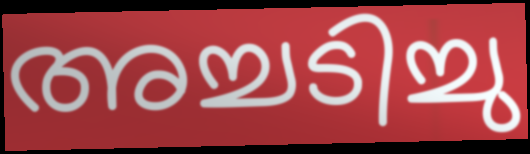
അച്ചടിച്ചു